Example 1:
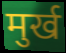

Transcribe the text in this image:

मुर्ख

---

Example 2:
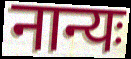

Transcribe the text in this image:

नान्यः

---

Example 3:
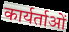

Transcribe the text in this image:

कार्यर्ताओं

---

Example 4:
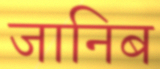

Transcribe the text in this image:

जानिब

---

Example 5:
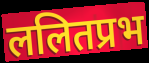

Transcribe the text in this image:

ललितप्रभ